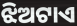
ଝିଅଟାଏ